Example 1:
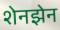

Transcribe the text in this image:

शेनझेन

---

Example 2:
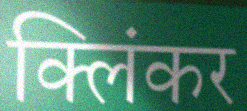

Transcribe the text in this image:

क्लिंकर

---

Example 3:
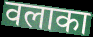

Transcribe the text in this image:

वलाका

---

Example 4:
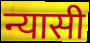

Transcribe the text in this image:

न्यासी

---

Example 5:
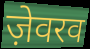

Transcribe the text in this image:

ज़ेवरव